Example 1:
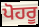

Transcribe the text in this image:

ਪੋਹਰੂ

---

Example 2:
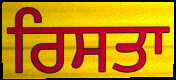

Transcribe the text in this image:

ਰਿਸਤਾ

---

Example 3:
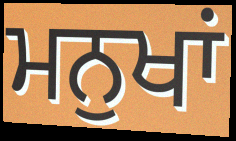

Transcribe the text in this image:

ਮਨੁਖਾਂ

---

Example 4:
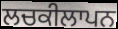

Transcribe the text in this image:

ਲਚਕੀਲਾਪਨ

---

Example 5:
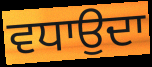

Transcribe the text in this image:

ਵਧਾਉਦਾ